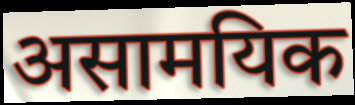
असामयिक